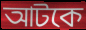
আটকে